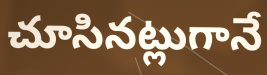
చూసినట్లుగానే